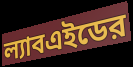
ল্যাবএইডের